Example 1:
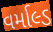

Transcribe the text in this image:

વર્માલ્ડ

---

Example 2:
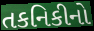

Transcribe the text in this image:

તકનિકીનો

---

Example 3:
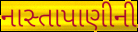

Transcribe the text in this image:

નાસ્તાપાણીની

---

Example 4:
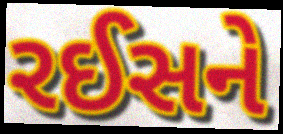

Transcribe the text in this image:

રઈસને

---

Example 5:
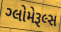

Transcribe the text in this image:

ગ્લોમેરૂલ્સ